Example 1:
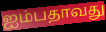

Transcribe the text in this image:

ஐம்பதாவது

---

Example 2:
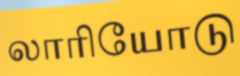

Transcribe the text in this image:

லாரியோடு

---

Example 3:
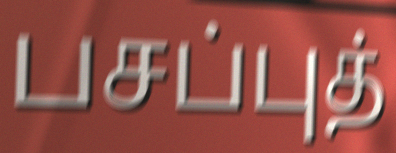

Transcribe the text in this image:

பசப்புத்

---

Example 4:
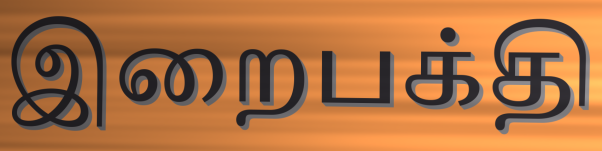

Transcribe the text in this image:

இறைபக்தி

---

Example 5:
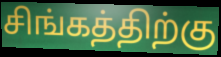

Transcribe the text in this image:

சிங்கத்திற்கு